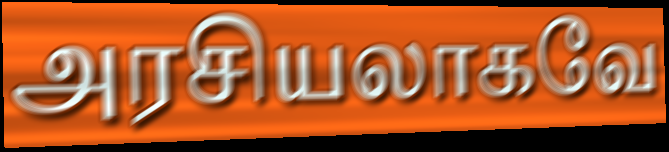
அரசியலாகவே